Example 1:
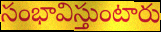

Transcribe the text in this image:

సంభావిస్తుంటారు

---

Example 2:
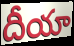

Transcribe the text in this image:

దీయా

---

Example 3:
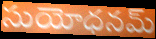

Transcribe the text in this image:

సుయోధనమ్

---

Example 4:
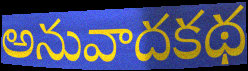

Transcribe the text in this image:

అనువాదకథ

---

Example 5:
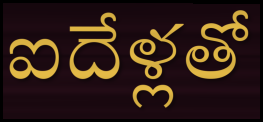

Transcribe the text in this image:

ఐదేళ్లతో